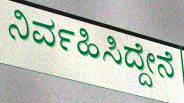
ನಿರ್ವಹಿಸಿದ್ದೇನೆ